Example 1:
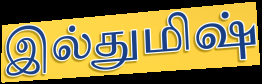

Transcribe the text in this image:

இல்துமிஷ்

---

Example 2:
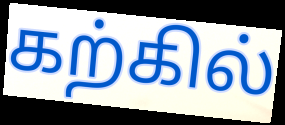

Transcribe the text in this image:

கற்கில்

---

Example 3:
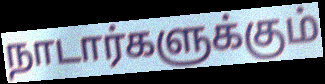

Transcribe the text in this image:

நாடார்களுக்கும்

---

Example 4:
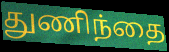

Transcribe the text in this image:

துணிந்தை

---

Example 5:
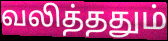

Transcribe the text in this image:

வலித்ததும்